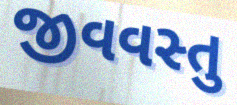
જીવવસ્તુ